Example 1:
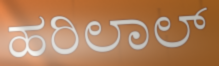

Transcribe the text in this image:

ಹರಿಲಾಲ್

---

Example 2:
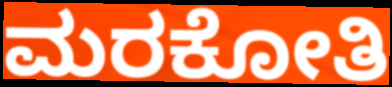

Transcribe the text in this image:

ಮರಕೋತಿ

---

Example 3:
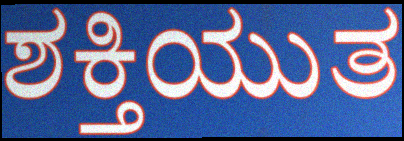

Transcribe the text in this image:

ಶಕ್ತಿಯುತ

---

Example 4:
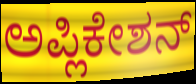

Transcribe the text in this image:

ಅಪ್ಲಿಕೇಶನ್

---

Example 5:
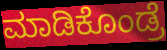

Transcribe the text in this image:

ಮಾಡಿಕೊಂಡ್ರೆ